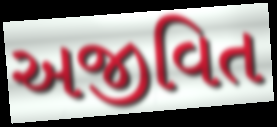
અજીવિત